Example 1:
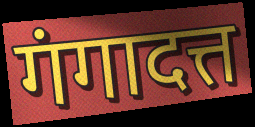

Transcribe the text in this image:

गंगादत्त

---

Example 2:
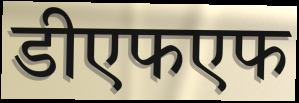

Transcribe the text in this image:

डीएफएफ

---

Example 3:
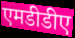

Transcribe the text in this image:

एमडीडीए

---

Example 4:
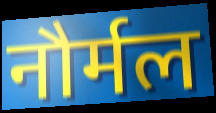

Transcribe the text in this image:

नौर्मल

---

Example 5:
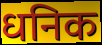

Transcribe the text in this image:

धनिक